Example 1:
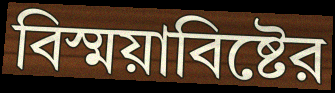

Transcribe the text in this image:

বিস্ময়াবিষ্টের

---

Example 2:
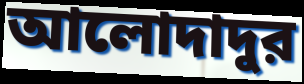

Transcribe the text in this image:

আলোদাদুর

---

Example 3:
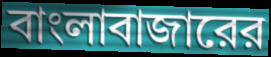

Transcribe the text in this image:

বাংলাবাজারের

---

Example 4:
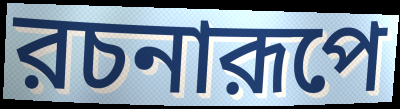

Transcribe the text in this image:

রচনারূপে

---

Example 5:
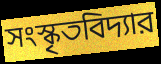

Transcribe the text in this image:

সংস্কৃতবিদ্যার